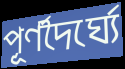
পূর্ণদৈর্ঘ্যে